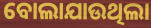
ବୋଲାଯାଉଥିଲା